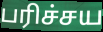
பரிச்சய